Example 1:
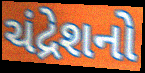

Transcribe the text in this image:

ચંદ્રેશનો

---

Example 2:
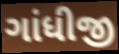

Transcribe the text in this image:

ગાંધીજી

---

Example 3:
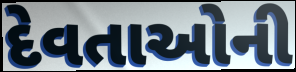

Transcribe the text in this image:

દેવતાઓની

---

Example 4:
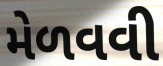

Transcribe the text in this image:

મેળવવી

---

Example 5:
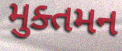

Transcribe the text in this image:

મુક્તમન